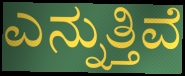
ಎನ್ನುತ್ತಿವೆ